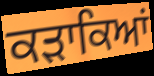
ਕੜਾਕਿਆਂ